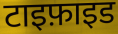
टाइफ़ाइड